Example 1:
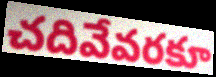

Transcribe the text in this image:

చదివేవరకూ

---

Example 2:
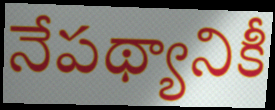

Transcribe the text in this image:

నేపథ్యానికీ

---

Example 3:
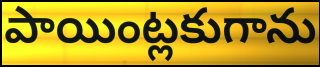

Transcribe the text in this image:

పాయింట్లకుగాను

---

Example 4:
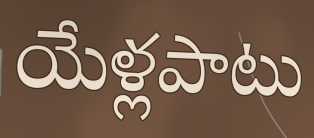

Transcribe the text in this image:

యేళ్లపాటు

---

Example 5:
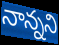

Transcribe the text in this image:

నాన్నని